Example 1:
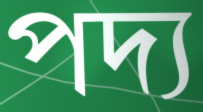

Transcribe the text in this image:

পদ্য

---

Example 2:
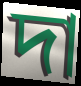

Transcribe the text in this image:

দা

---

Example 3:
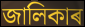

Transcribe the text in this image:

জালিকাৰ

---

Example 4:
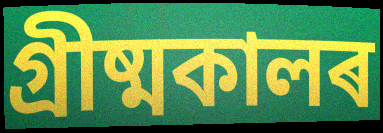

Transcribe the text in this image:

গ্ৰীষ্মকালৰ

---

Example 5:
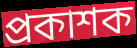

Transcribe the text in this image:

প্ৰকাশক